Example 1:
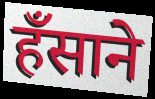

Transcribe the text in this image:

हँसाने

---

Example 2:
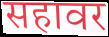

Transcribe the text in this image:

सहावर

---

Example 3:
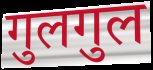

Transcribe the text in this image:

गुलगुल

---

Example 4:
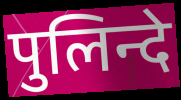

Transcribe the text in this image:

पुलिन्दे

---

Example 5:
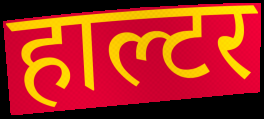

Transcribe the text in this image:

हाल्टर